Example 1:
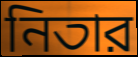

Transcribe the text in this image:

নিতার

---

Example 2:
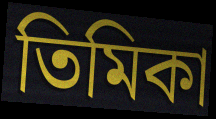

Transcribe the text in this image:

তিমিকা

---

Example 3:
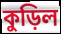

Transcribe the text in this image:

কুড়িল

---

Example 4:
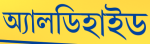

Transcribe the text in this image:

অ্যালডিহাইড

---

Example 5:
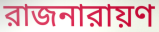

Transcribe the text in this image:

রাজনারায়ণ